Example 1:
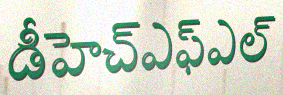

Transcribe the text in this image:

డీహెచ్ఎఫ్ఎల్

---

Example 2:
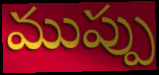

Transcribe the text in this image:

ముప్పు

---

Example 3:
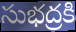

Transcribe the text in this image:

సుభద్రకి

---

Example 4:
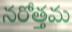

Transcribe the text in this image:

నరోత్తమ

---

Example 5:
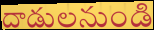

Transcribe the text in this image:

దాడులనుండి